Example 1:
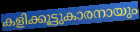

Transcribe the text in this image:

കളിക്കൂട്ടുകാരനായും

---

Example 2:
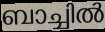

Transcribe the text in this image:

ബാച്ചിൽ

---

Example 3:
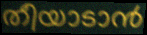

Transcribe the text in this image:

തീയാടാൻ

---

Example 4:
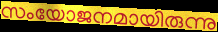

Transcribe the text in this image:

സംയോജനമായിരുന്നു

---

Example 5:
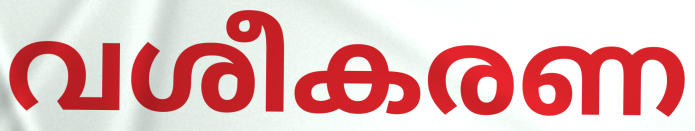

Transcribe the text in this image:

വശീകരണ